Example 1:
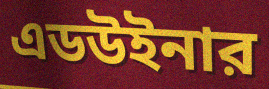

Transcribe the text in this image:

এডউইনার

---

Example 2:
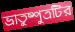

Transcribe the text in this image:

ভ্রাতুষ্পুত্রটির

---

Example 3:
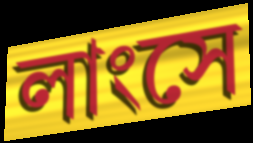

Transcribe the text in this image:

লাংসে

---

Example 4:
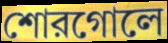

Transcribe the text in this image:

শোরগোলে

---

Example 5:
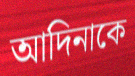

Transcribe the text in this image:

আদিনাকে